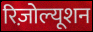
रिज़ोल्यूशन